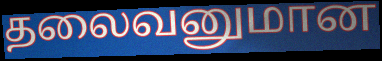
தலைவனுமான